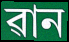
ৱান